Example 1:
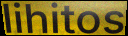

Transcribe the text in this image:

lihitos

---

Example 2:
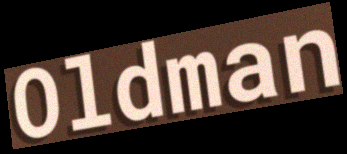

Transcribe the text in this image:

Oldman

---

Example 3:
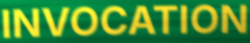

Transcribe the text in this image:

INVOCATION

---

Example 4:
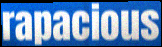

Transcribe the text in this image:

rapacious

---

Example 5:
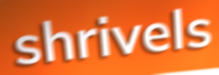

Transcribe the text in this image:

shrivels